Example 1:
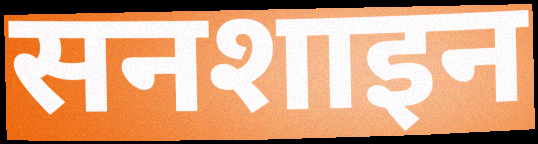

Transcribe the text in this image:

सनशाइन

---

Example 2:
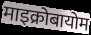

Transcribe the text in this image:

माइक्रोबायोम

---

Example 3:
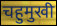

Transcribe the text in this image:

चहुमुखी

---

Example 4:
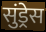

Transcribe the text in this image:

सुंड्रेस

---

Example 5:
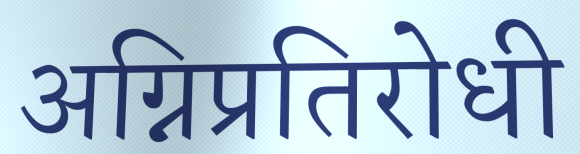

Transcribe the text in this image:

अग्निप्रतिरोधी